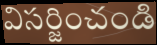
విసర్జించండి